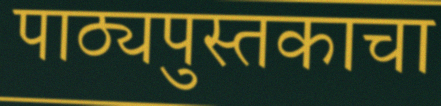
पाठ्यपुस्तकाचा